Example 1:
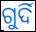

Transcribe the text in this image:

ଗୁର୍ଦି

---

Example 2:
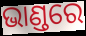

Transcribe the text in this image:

ଭାଣ୍ଡରେ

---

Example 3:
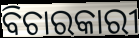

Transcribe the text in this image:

ବିଚାରକାରୀ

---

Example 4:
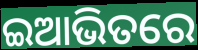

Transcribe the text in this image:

ଇଆଭିତରେ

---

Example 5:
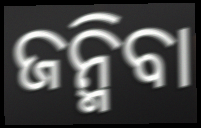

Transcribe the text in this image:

ଜନ୍ମିବା